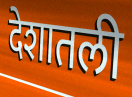
देशातली